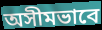
অসীমভাবে